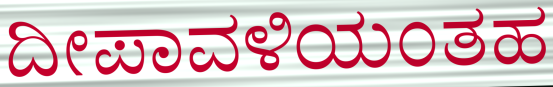
ದೀಪಾವಳಿಯಂತಹ